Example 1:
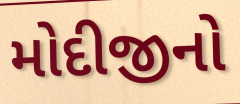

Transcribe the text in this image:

મોદીજીનો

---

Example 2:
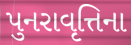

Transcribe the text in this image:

પુનરાવૃત્તિના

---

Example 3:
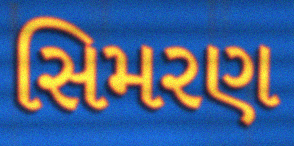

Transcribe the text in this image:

સિમરણ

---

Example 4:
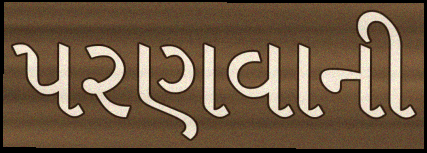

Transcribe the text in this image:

પરણવાની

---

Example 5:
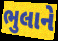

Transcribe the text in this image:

ભુલાને